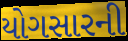
યોગસારની